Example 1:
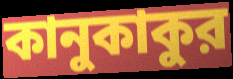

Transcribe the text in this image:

কানুকাকুর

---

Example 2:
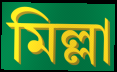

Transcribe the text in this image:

মিল্লা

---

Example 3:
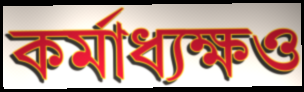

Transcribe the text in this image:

কর্মাধ্যক্ষও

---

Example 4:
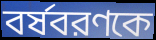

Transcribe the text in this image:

বর্ষবরণকে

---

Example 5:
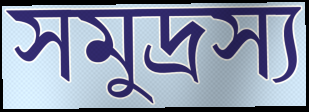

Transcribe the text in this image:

সমুদ্রস্য